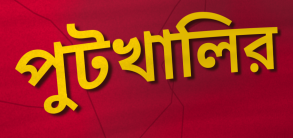
পুটখালির